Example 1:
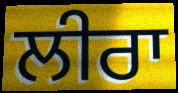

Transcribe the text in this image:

ਲੀਰਾ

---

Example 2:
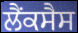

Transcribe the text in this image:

ਲੈਂਕਸੈਸ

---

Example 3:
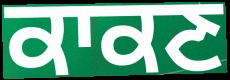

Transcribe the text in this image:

ਕਾਕਣ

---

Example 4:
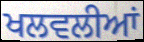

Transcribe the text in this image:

ਖਲਵਲੀਆਂ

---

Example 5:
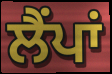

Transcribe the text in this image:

ਲੈਂਪਾਂ